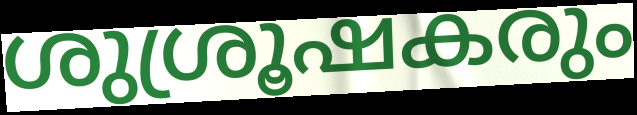
ശുശ്രൂഷകരും